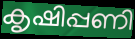
കൃഷിപ്പണി